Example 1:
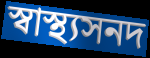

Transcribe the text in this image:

স্বাস্থ্যসনদ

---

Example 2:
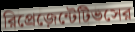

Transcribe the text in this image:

রিপ্রেজ়েন্টেটিভসের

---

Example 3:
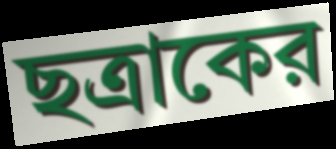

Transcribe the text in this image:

ছত্রাকের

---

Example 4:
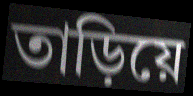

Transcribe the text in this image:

তাড়িয়ে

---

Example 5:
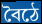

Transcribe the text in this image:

বৈঠে